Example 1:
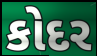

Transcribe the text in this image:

કોદર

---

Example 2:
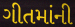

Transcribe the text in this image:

ગીતમાંની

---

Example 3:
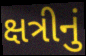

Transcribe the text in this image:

ક્ષત્રીનું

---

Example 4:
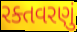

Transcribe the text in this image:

રક્તવરણું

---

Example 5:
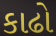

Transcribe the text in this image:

કાઢો